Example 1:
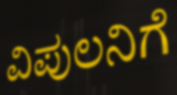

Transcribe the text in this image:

ವಿಪುಲನಿಗೆ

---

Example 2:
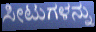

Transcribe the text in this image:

ಸೀಟುಗಳನ್ನು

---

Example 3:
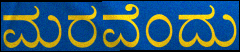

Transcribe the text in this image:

ಮರವೆಂದು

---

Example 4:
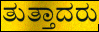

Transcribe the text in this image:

ತುತ್ತಾದರು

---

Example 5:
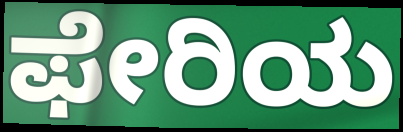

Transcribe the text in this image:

ಫೇರಿಯ